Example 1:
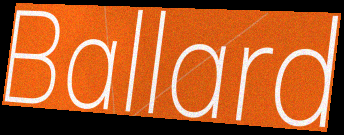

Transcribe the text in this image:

Ballard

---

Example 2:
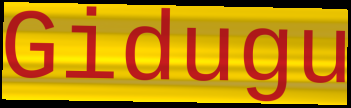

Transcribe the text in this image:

Gidugu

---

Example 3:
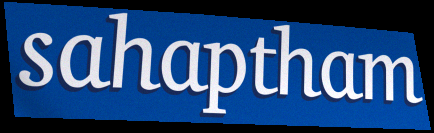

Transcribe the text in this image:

sahaptham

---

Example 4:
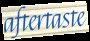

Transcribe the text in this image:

aftertaste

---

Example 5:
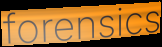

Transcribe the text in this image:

forensics